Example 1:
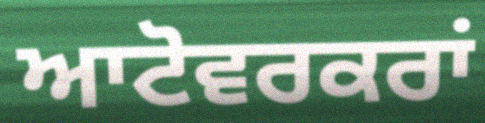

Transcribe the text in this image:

ਆਟੋਵਰਕਰਾਂ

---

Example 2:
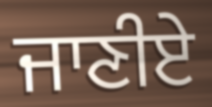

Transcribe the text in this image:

ਜਾਣੀਏ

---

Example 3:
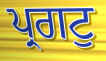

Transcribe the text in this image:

ਪ੍ਰਗਟੁ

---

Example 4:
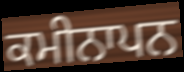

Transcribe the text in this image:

ਕਮੀਨਾਪਨ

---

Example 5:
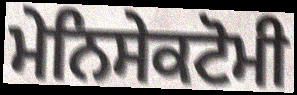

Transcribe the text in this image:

ਮੇਨਿਸੇਕਟੋਮੀ